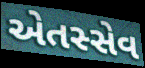
એતસ્સેવ